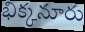
భిక్కనూరు